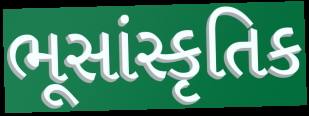
ભૂસાંસ્કૃતિક